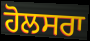
ਹੋਲਸਰਾ